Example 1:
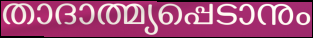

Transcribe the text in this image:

താദാത്മ്യപ്പെടാനും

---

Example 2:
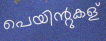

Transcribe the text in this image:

പെയിന്റുകള്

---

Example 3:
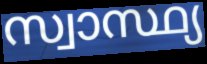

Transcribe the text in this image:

സ്വാസ്ഥ്യ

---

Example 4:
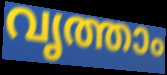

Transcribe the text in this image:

വൃത്താം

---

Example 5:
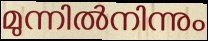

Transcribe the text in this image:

മുന്നിൽനിന്നും